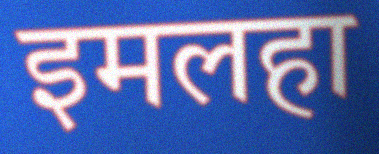
इमलहा